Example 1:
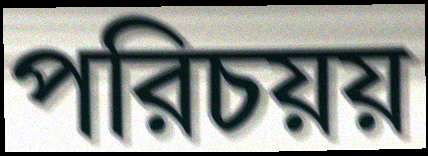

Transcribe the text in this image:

পরিচয়য়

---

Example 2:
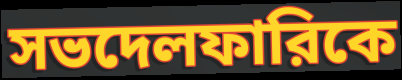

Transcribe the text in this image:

সভদেলফারিকে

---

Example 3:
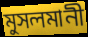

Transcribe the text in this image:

মুসলমানী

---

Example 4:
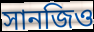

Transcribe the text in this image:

সানজিও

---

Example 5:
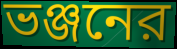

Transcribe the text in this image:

ভঞ্জনের